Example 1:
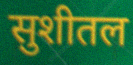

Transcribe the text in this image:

सुशीतल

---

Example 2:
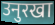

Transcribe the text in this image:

उनुरखा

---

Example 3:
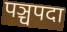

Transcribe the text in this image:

पञ्चपदा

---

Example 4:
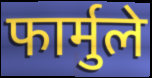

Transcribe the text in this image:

फार्मुले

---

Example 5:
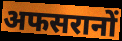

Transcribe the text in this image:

अफसरानों